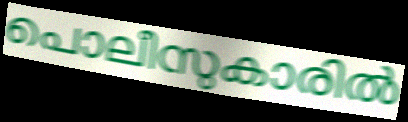
പൊലീസുകാരിൽ